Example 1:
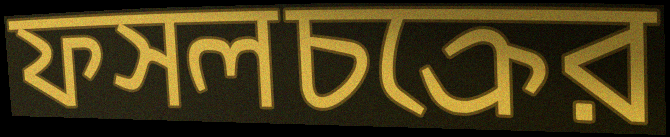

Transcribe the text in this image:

ফসলচক্রের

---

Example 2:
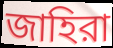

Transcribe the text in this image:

জাহিরা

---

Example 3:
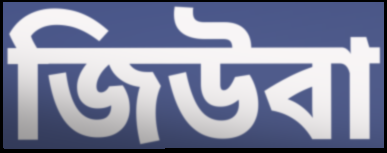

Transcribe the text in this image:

জিউবা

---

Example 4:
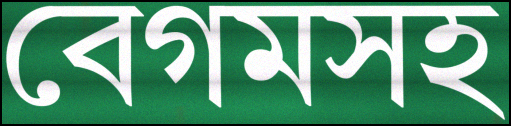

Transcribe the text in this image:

বেগমসহ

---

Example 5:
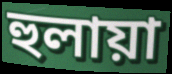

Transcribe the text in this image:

হুলায়া